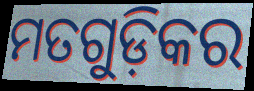
ମତଗୁଡ଼ିକର